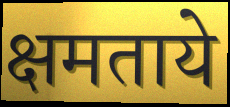
क्षमताये